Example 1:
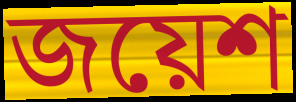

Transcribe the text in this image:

জয়েশ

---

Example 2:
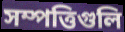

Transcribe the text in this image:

সম্পত্তিগুলি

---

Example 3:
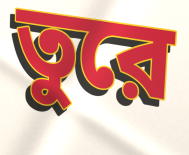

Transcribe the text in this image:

তুরে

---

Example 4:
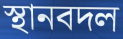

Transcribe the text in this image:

স্থানবদল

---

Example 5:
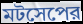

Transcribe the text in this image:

মটসেপের